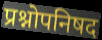
प्रश्नोपनिषद